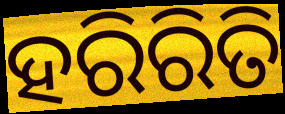
ହରିରିତି